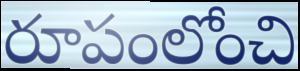
రూపంలోంచి